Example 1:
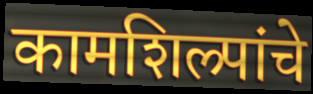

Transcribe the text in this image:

कामशिल्पांचे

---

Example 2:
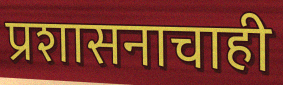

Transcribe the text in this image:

प्रशासनाचाही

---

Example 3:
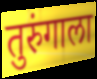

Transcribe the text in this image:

तुरुंगाला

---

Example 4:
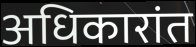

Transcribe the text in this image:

अधिकारांत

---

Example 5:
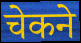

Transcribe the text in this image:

चेकने